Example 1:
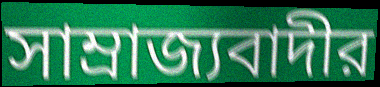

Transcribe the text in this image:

সাম্রাজ্যবাদীর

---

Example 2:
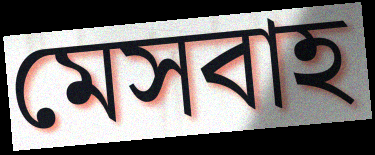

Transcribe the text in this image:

মেসবাহ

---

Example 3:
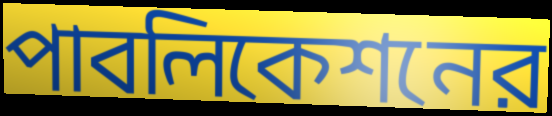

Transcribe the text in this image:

পাবলিকেশনের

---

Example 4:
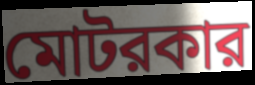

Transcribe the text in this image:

মোটরকার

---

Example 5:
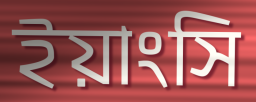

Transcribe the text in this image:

ইয়াংসি